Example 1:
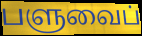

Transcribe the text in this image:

பளுவைப்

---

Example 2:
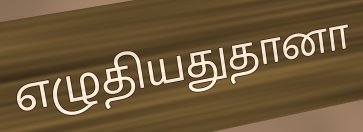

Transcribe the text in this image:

எழுதியதுதானா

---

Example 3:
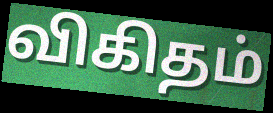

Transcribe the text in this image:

விகிதம்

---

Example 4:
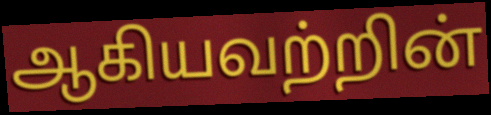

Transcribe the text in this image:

ஆகியவற்றின்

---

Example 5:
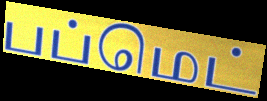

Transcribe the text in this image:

பப்மெட்